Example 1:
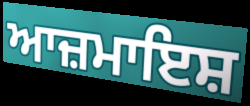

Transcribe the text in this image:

ਆਜ਼ਮਾਇਸ਼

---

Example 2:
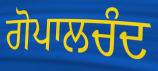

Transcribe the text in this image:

ਗੋਪਾਲਚੰਦ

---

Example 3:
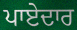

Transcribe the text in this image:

ਪਾਏਦਾਰ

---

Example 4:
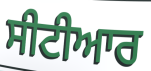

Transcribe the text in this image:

ਸੀਟੀਆਰ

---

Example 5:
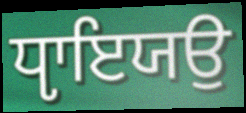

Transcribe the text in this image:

ਧੵਾਇਯਉ